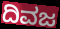
ದಿವಜ